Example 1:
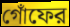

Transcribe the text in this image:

গোঁফের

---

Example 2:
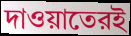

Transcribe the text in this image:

দাওয়াতেরই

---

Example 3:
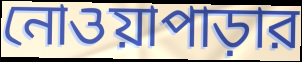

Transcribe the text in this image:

নোওয়াপাড়ার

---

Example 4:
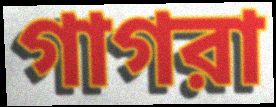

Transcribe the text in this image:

গাগরা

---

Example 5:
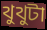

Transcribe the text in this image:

থুথুটা